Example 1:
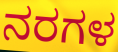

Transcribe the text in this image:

ನರಗಳ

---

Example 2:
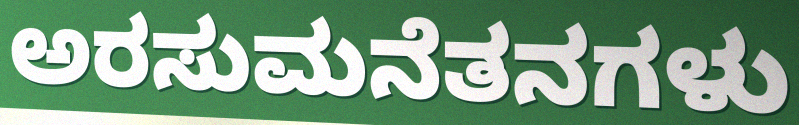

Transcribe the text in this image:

ಅರಸುಮನೆತನಗಳು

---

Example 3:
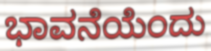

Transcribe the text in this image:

ಭಾವನೆಯೆಂದು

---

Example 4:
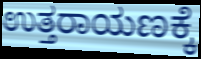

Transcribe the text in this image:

ಉತ್ತರಾಯಣಕ್ಕೆ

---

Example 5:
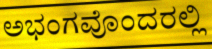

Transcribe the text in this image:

ಅಭಂಗವೊಂದರಲ್ಲಿ